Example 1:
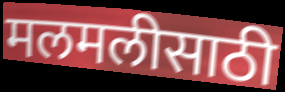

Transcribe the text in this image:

मलमलीसाठी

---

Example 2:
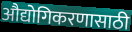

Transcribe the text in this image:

औद्योगिकरणासाठी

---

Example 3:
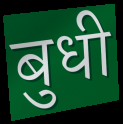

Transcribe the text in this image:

बुधी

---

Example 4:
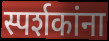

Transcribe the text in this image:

स्पर्शकांना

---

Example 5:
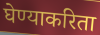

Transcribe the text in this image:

घेण्याकरिता